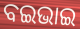
ବଇଭାଇ